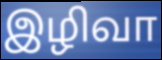
இழிவா